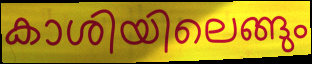
കാശിയിലെങ്ങും